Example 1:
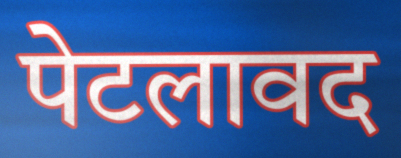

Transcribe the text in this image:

पेटलावद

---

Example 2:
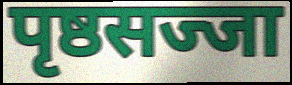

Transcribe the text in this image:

पृष्ठसज्जा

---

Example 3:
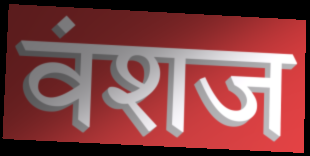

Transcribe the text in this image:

वंशज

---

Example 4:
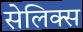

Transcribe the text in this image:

सेलिक्स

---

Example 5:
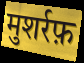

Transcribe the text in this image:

मुशर्रफ़